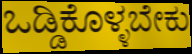
ಒಡ್ಡಿಕೊಳ್ಳಬೇಕು